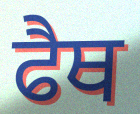
ਫੈਥ